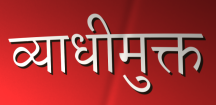
व्याधीमुक्त